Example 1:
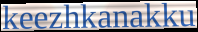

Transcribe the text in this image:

keezhkanakku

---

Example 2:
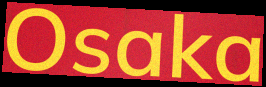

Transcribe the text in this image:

Osaka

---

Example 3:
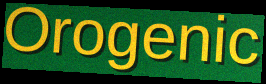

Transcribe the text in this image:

Orogenic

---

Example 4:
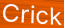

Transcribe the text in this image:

Crick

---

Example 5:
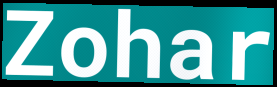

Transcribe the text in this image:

Zohar